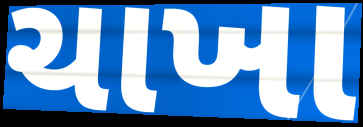
ચાખા